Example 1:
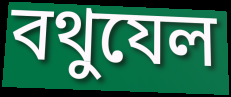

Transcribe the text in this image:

বথুযেল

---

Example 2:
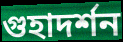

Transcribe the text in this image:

গুহাদর্শন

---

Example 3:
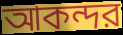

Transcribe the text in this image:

আকন্দর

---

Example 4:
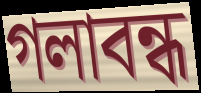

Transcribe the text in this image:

গলাবন্ধ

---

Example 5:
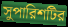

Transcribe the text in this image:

সুপারিশটির